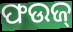
ଫଉଜ୍